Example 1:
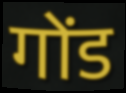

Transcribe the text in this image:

गोंड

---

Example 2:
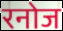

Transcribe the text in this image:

रनोज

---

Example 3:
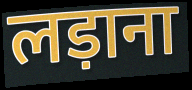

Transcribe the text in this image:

लड़ाना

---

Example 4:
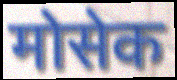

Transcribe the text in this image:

मोसेक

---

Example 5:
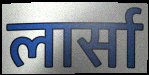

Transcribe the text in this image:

लार्सा